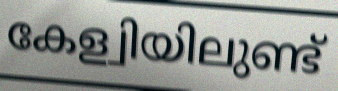
കേള്വിയിലുണ്ട്